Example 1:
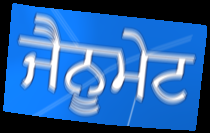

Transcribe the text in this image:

ਜੈਨੂਮੇਟ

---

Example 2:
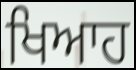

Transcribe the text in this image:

ਖਿਆਹ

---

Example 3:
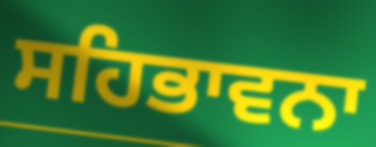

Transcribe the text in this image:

ਸਹਿਭਾਵਨਾ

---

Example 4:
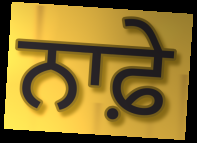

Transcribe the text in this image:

ਨਾਫ਼ੇ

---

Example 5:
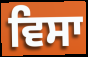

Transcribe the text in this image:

ਵਿਸਾ